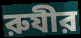
রুযীর